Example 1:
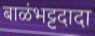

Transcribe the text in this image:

बाळंभट्टदादा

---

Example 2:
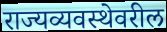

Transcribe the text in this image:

राज्यव्यवस्थेवरील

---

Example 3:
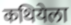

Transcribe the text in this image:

कथियेला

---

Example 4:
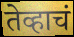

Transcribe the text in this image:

तेव्हाचं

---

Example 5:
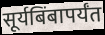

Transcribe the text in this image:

सूर्यबिंबापर्यंत